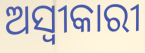
ଅସ୍ୱୀକାରୀ